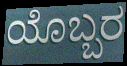
ಯೊಬ್ಬರ